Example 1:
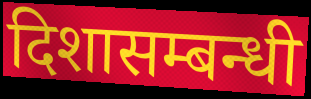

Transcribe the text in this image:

दिशासम्बन्धी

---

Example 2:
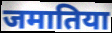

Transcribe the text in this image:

जमातिया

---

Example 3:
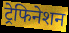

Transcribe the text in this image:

ट्रेफिनेशन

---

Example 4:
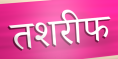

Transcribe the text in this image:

तशरीफ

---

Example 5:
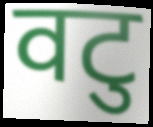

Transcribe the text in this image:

वटु